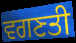
ਵਗਣਤੀ